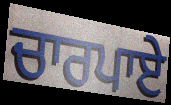
ਚਾਰਪਾਏ